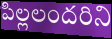
పిల్లలందరిని